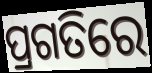
ପ୍ରଗତିରେ